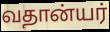
வதான்யர்